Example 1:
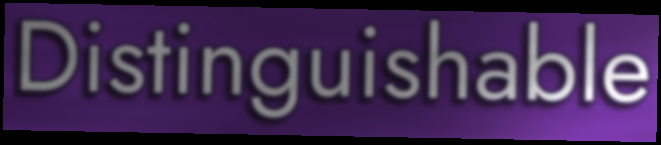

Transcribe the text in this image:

Distinguishable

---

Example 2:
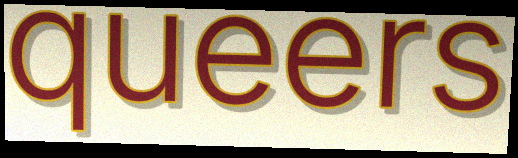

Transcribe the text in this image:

queers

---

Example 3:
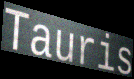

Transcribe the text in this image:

Tauris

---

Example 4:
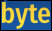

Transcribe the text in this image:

byte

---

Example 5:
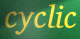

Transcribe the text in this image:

cyclic